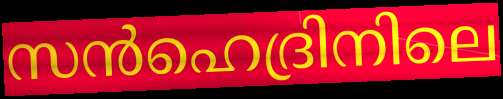
സൻഹെദ്രിനിലെ